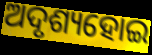
ଅଦୃଶ୍ୟହୋଇ